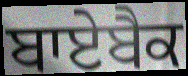
ਬਾਏਬੈਕ